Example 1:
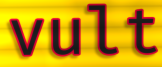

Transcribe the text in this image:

vult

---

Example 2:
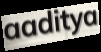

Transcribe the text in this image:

aaditya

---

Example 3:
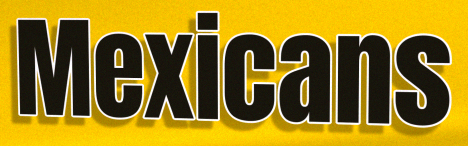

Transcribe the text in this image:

Mexicans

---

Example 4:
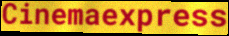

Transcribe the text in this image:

Cinemaexpress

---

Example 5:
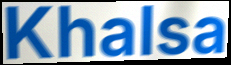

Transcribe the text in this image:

Khalsa